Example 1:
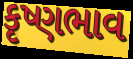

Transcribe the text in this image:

કૃષ્ણભાવ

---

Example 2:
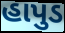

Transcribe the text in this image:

હાપુડ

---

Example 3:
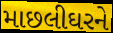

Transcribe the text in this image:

માછલીઘરને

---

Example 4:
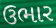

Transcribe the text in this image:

ઉભાર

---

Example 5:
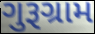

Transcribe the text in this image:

ગુરૂગ્રામ